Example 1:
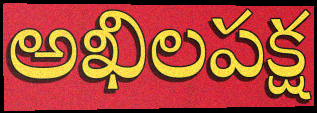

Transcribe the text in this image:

అఖిలపక్ష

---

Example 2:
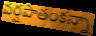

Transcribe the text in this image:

వర్షపాతంకన్నా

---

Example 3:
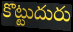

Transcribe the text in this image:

కొట్టుదురు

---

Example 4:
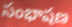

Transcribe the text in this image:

సంభాషణ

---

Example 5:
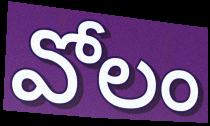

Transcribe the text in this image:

వోలం